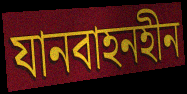
যানবাহনহীন